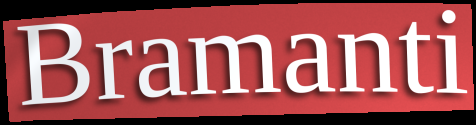
Bramanti